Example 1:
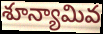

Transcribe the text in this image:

శూన్యామివ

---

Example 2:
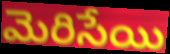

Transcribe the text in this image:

మెరిసేయి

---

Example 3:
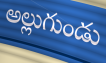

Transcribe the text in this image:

అల్లుగుండు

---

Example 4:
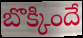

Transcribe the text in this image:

బొక్కిందే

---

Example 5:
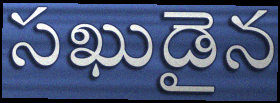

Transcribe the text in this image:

సఖుడైన